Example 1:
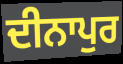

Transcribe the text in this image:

ਦੀਨਾਪੁਰ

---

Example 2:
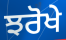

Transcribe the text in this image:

ਝਰੋਖੇ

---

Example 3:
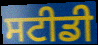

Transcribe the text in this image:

ਸਟੀਡੀ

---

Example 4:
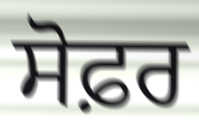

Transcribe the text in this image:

ਸੋਫ਼ਰ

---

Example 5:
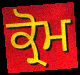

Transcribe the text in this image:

ਕ੍ਰੋਮ